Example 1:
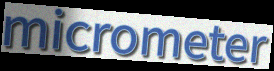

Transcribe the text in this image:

micrometer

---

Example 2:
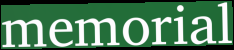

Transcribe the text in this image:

memorial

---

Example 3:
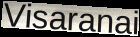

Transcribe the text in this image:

Visaranai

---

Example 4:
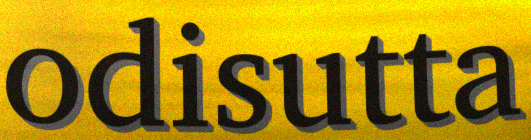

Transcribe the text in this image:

odisutta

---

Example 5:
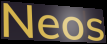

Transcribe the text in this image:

Neos